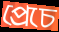
প্ৰেচে